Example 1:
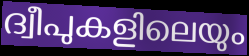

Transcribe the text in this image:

ദ്വീപുകളിലെയും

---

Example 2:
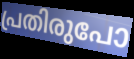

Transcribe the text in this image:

പ്രതിരുപോ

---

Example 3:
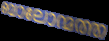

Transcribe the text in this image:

ബാലോന്മത്ത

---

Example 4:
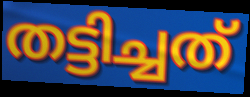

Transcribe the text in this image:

തട്ടിച്ചത്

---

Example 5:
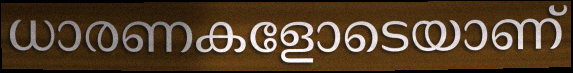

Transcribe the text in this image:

ധാരണകളോടെയാണ്